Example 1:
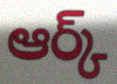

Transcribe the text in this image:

ఆర్క్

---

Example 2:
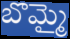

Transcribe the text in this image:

బొమ్మై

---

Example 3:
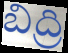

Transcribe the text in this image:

బిద్రి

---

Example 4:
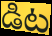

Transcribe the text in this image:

డిట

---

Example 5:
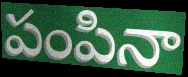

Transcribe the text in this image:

పంపినా